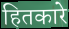
हितकारे